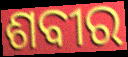
ଶବୀର